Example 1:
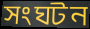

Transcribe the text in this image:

সংঘটন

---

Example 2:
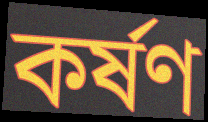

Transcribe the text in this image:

কৰ্ষণ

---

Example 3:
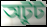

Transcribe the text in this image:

অটুট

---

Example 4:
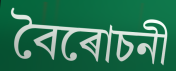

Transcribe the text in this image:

বৈৰোচনী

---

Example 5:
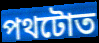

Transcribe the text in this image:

পথটোত